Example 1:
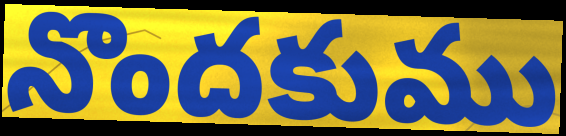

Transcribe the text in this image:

నొందకుము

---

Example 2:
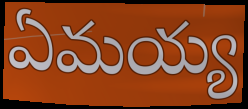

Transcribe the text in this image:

ఏమయ్య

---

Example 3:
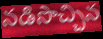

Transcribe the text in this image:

నడిసొచ్చిన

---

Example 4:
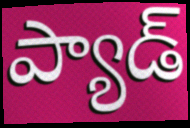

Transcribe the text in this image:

ప్యాడ్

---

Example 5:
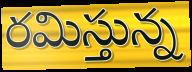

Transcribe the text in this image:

రమిస్తున్న